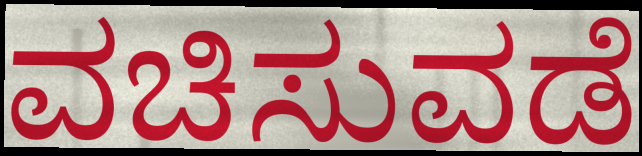
ವಚಿಸುವಡೆ